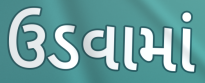
ઉડવામાં